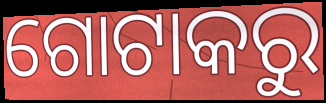
ଗୋଟାକରୁ